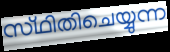
സ്‌ഥിതിചെയ്യുന്ന